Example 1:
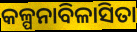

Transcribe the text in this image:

କଳ୍ପନାବିଳାସିତା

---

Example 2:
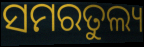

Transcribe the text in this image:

ସମରତୁଲ୍ୟ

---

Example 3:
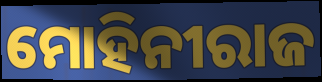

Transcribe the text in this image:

ମୋହିନୀରାଜ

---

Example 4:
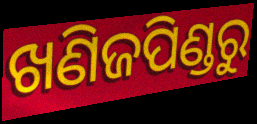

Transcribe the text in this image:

ଖଣିଜପିଣ୍ଡରୁ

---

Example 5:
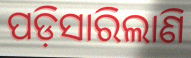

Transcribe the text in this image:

ପଡ଼ିସାରିଲାଣି